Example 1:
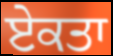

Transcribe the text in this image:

ਏਕਤਾ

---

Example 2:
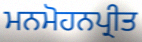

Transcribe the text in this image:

ਮਨਮੋਹਨਪ੍ਰੀਤ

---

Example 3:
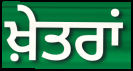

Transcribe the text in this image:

ਖ਼ੇਤਰਾਂ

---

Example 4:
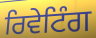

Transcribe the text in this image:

ਰਿਵੇਟਿੰਗ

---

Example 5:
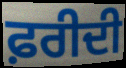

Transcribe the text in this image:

ਫ਼ਰੀਦੀ